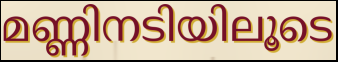
മണ്ണിനടിയിലൂടെ